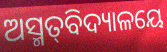
ଅସ୍ମତ୍‌ବିଦ୍ୟାଳୟେ